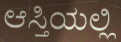
ಆಸ್ತಿಯಲ್ಲಿ